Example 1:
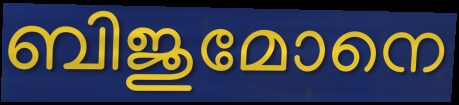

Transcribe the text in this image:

ബിജുമോനെ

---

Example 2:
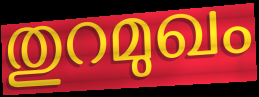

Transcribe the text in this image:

തുറമുഖം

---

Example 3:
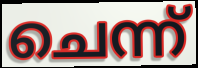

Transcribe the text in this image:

ചെന്ന്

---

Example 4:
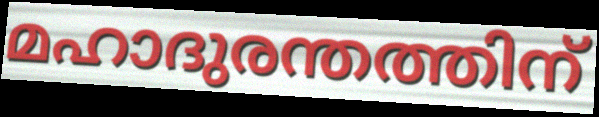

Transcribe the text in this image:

മഹാദുരന്തത്തിന്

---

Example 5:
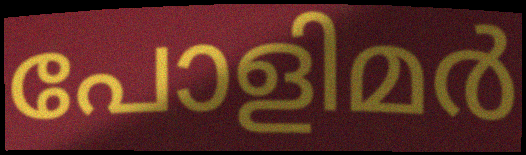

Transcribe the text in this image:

പോളിമർ